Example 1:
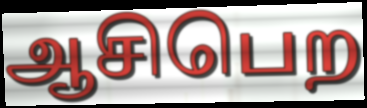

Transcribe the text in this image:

ஆசிபெற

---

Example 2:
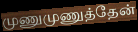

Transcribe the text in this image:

முணுமுணுத்தேன்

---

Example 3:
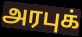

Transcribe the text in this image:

அரபுக்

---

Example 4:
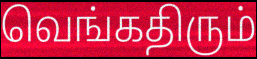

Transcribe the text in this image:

வெங்கதிரும்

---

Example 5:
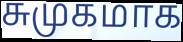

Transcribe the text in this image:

சுமுகமாக